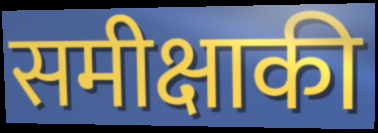
समीक्षाकी